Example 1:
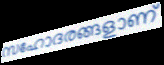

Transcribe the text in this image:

സഹോദരങ്ങളാണ്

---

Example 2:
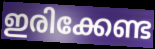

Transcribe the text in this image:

ഇരിക്കേണ്ട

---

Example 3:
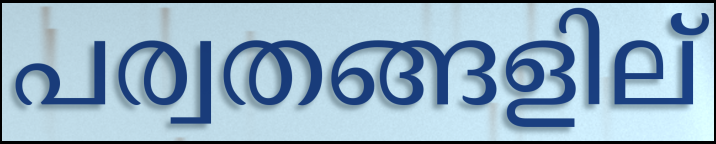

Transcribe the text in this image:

പര്വതങ്ങളില്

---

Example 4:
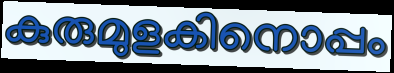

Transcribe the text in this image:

കുരുമുളകിനൊപ്പം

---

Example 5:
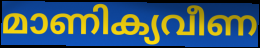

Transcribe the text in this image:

മാണിക്യവീണ